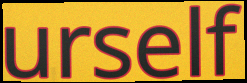
urself